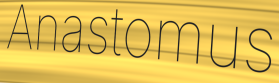
Anastomus